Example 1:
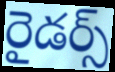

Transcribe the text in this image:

రైడర్స్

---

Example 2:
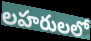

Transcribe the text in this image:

లహరులలో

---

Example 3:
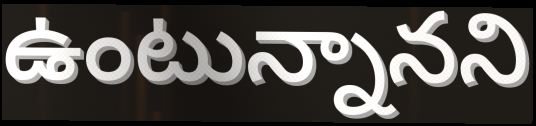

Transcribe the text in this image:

ఉంటున్నానని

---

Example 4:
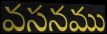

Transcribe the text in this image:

వసనము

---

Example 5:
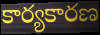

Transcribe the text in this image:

కార్యకారణ